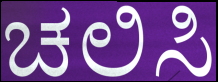
ಚಲಿಸಿ